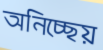
অনিচ্ছেয়